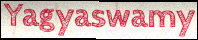
Yagyaswamy